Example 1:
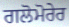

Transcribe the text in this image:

ਗਲੋਮੋਰੇਰ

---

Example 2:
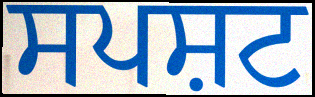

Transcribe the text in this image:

ਸਪਸ਼ਟ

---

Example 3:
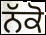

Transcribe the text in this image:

ਨੱਕੋ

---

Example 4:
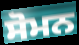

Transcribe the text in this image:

ਸੋਮਨ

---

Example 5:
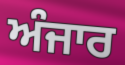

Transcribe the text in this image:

ਅੰਜਾਰ